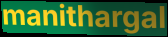
manithargal